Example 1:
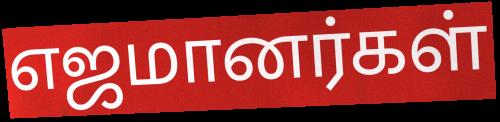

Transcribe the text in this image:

எஜமானர்கள்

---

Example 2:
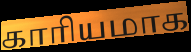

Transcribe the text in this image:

காரியமாக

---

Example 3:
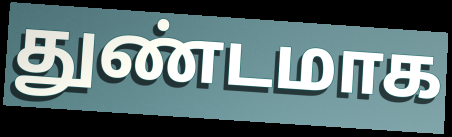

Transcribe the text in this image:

துண்டமாக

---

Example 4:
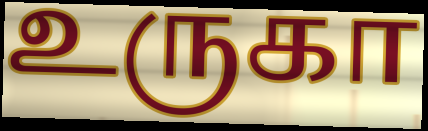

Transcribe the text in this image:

உருகா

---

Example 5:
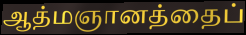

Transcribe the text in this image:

ஆத்மஞானத்தைப்